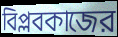
বিপ্লবকাজের